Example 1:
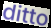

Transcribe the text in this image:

ditto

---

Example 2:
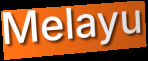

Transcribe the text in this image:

Melayu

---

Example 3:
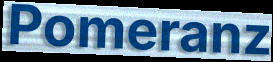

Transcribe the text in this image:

Pomeranz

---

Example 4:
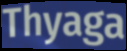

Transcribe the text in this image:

Thyaga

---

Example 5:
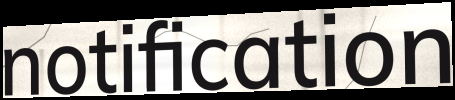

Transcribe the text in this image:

notification